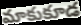
మాకుకూడ